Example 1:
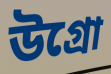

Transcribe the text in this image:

উগ্রো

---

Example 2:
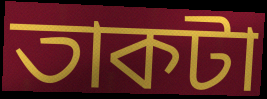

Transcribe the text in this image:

তাকটা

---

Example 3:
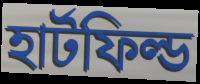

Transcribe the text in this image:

হার্টফিল্ড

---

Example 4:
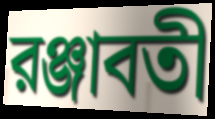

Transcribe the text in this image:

রঞ্জাবতী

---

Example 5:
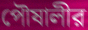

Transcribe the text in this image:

পৌষালীর